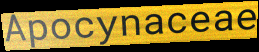
Apocynaceae